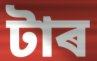
টাৰ